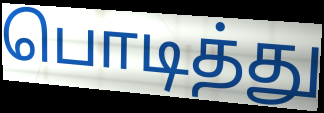
பொடித்து